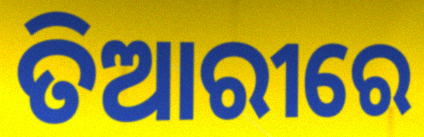
ତିଆରୀରେ